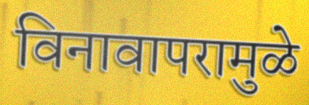
विनावापरामुळे